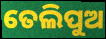
ତେଲିପୁଅ